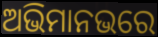
ଅଭିମାନଭରେ